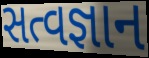
સત્વજ્ઞાન